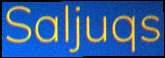
Saljuqs